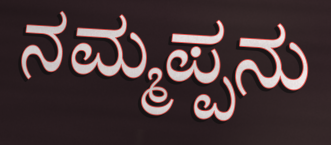
ನಮ್ಮಪ್ಪನು